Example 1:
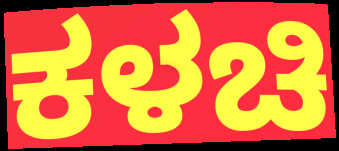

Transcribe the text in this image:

ಕಳಚಿ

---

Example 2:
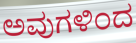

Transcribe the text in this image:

ಅವುಗಳಿಂದ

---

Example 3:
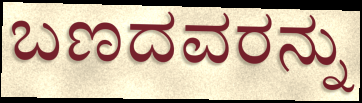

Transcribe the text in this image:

ಬಣದವರನ್ನು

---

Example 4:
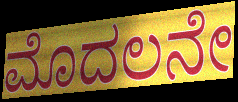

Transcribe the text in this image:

ಮೊದಲನೇ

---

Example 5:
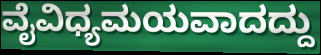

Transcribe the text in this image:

ವೈವಿಧ್ಯಮಯವಾದದ್ದು